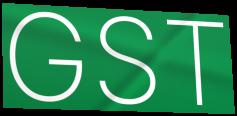
GST